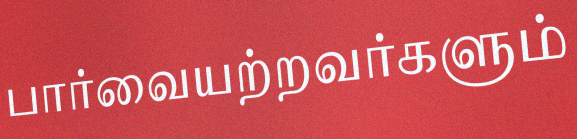
பார்வையற்றவர்களும்